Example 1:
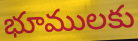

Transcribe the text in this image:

భూములకు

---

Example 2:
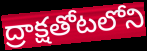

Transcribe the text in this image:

ద్రాక్షతోటలోని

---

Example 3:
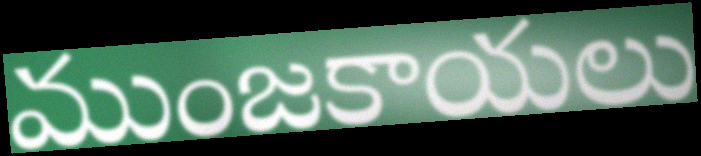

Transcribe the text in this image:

ముంజకాయలు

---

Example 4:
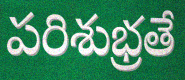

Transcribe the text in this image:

పరిశుభ్రతే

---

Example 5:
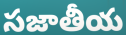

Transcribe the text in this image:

సజాతీయ